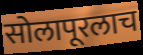
सोलापूरलाच